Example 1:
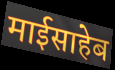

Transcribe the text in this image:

माईसाहेब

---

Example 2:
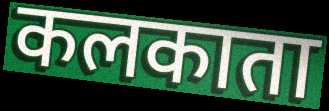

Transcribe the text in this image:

कलकाता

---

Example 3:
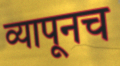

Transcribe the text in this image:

व्यापूनच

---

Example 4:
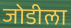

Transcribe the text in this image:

जोडीला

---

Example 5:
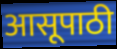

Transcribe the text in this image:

आसूपाठी